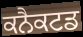
ਕਨੈਕਟਡ